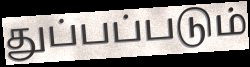
துப்பப்படும்